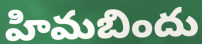
హిమబిందు